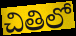
చితిలో